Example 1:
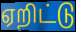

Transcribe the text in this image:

ஏறிட்டு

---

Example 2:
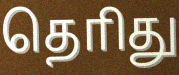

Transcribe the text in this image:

தெரிது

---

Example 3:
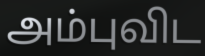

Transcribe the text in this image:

அம்புவிட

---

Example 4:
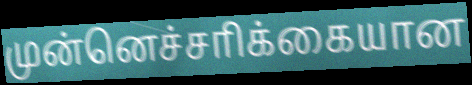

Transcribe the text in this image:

முன்னெச்சரிக்கையான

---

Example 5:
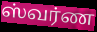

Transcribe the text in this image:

ஸ்வர்ண